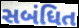
સબંધિત